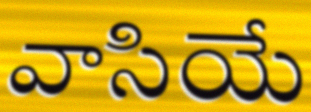
వాసియే